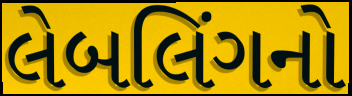
લેબલિંગનો